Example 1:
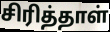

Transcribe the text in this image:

சிரித்தாள்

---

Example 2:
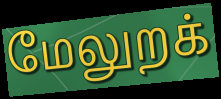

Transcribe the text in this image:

மேலுறக்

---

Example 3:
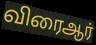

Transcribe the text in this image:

விரைஆர்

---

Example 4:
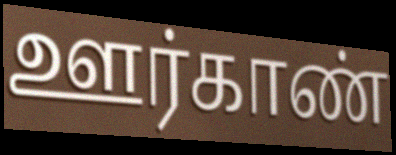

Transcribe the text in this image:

ஊர்காண்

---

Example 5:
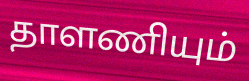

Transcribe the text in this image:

தாளணியும்